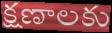
క్షణాలకు